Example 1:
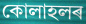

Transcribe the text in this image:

কোলাহলৰ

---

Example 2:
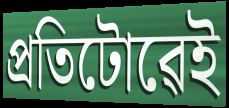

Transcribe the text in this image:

প্ৰতিটোৱেই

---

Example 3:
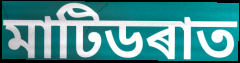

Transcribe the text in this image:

মাটিডৰাত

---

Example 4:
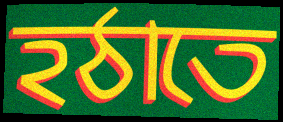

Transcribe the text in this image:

হঠাতে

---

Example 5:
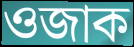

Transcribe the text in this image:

ওজাক